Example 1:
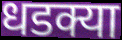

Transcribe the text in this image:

धडक्या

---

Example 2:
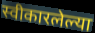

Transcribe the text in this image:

स्वीकारलेल्या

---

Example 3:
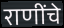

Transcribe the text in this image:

राणींचे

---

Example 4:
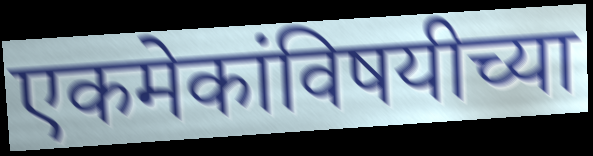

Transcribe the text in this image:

एकमेकांविषयीच्या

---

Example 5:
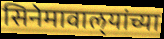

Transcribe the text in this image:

सिनेमावाल्यांच्या